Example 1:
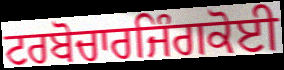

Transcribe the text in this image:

ਟਰਬੋਚਾਰਜਿੰਗਕੋਈ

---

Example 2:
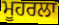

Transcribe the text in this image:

ਮੂਹਰਲਾ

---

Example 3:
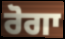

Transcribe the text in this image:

ਰੋਗਾ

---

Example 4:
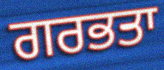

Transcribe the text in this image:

ਗਰਭਤਾ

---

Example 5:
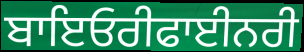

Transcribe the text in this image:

ਬਾਇਓਰੀਫਾਈਨਰੀ